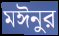
মঈনুর